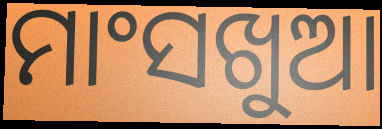
ମାଂସଖୁଆ